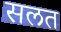
सलत